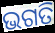
ଭଗତି